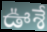
ఊశే